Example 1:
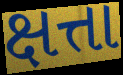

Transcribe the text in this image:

ક્ષત્તા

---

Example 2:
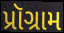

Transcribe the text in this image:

પ્રૉગ્રામ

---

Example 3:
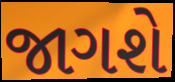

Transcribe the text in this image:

જાગશે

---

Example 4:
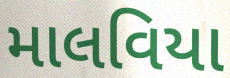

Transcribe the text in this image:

માલવિયા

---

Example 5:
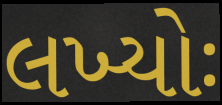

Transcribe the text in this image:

લખ્યોઃ